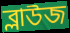
ব্লাউজ